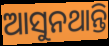
ଆସୁନଥାନ୍ତି